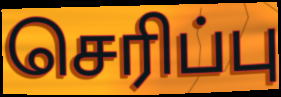
செரிப்பு